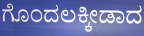
ಗೊಂದಲಕ್ಕೀಡಾದ